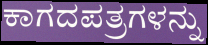
ಕಾಗದಪತ್ರಗಳನ್ನು